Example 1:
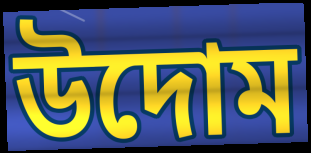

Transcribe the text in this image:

উদোম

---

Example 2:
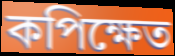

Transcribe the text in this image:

কপিক্ষেত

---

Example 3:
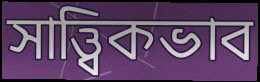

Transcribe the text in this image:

সাত্ত্বিকভাব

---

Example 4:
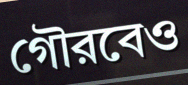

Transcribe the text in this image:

গৌরবেও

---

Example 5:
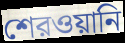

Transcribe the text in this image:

শেরওয়ানি